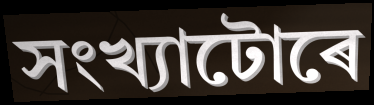
সংখ্যাটোৰে